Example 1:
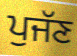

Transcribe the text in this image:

ਪੁਜੱਣ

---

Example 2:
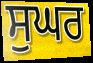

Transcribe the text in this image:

ਸੁਘਰ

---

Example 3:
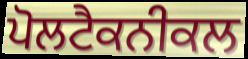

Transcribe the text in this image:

ਪੋਲਟੈਕਨੀਕਲ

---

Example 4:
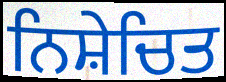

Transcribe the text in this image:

ਨਿਸ਼ੇਚਿਤ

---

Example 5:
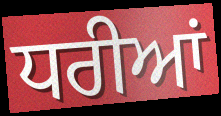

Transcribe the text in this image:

ਧਰੀਆਂ